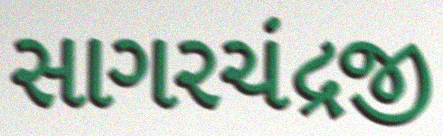
સાગરચંદ્રજી